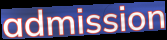
admission